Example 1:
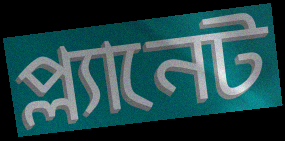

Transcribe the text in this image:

প্ল্যানেট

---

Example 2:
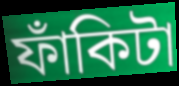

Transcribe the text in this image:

ফাঁকিটা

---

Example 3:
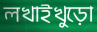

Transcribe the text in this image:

লখাইখুড়ো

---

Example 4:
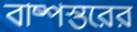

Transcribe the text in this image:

বাষ্পস্তরের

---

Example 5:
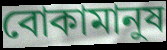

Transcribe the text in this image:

বোকামানুষ